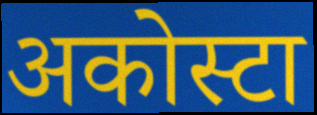
अकोस्टा